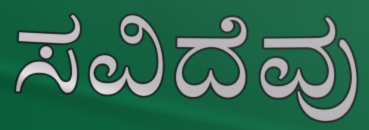
ಸವಿದೆವು